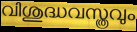
വിശുദ്ധവസ്ത്രവും